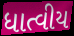
ધાત્વીય